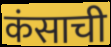
कंसाची